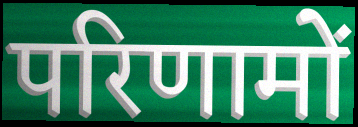
परिणामों